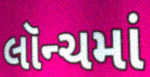
લૉન્ચમાં